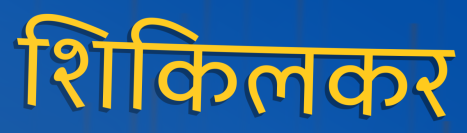
शिकिलकर